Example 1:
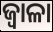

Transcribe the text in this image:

ଜ୍ୱାଳା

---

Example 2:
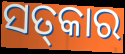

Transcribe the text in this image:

ସତ୍‌କାର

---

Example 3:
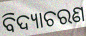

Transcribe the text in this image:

ବିଦ୍ୟାଚରଣ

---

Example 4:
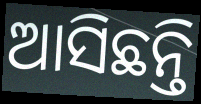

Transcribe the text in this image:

ଆସିଛନ୍ତି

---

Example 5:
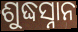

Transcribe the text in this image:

ଶୁଦ୍ଧସ୍ନାନ